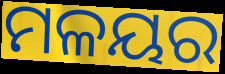
ମଳୟର